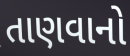
તાણવાનો